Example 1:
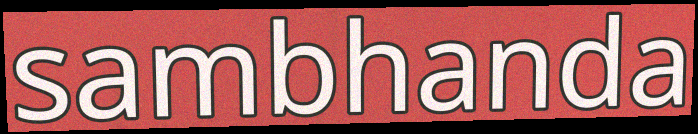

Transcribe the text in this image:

sambhanda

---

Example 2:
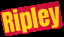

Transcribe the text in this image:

Ripley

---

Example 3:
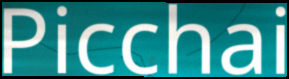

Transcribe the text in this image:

Picchai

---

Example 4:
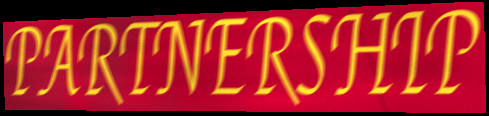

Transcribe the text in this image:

PARTNERSHIP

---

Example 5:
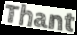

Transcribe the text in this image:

Thant